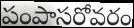
పంపాసరోవరం